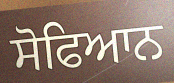
ਸੋਫਿਆਨ